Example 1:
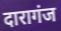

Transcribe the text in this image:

दारागंज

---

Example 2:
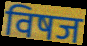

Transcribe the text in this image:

विषज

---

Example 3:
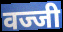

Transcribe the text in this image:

वज्जी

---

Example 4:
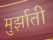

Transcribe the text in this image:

मुर्झाती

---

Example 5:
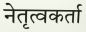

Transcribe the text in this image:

नेतृत्वकर्ता